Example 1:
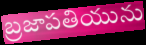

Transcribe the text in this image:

బ్రజాపతియును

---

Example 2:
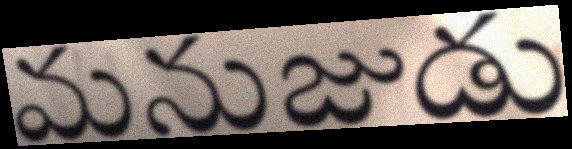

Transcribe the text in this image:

మనుజుడు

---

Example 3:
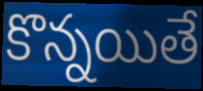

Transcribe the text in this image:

కొన్నయితే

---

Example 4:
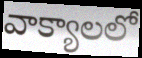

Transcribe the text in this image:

వాక్యాలలో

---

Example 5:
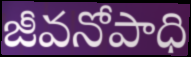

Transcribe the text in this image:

జీవనోపాధి